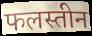
फलस्तीन